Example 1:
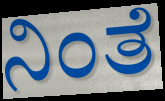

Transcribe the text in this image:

ನಿಂತೆ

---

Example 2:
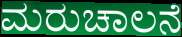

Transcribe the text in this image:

ಮರುಚಾಲನೆ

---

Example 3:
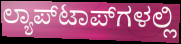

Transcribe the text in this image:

ಲ್ಯಾಪ್‌ಟಾಪ್‌ಗಳಲ್ಲಿ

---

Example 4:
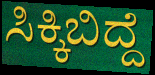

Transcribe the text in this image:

ಸಿಕ್ಕಿಬಿದ್ದೆ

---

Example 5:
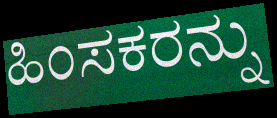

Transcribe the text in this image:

ಹಿಂಸಕರನ್ನು